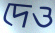
দেও